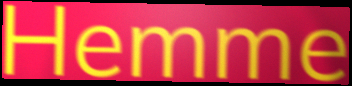
Hemme